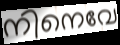
നിനെവേ